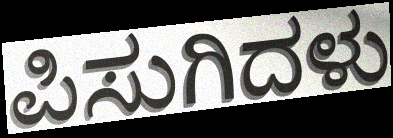
ಪಿಸುಗಿದಳು